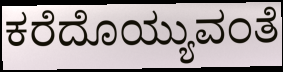
ಕರೆದೊಯ್ಯುವಂತೆ